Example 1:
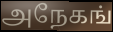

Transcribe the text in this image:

அநேகங்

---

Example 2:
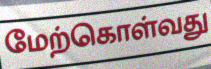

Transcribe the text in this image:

மேற்கொள்வது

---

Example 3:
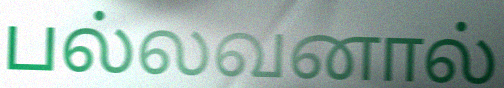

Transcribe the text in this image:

பல்லவனால்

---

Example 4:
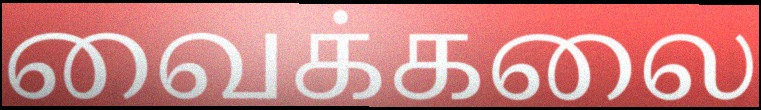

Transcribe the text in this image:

வைக்கலை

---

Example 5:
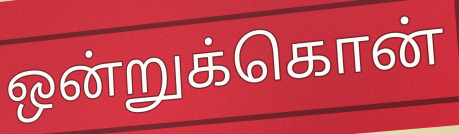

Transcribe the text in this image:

ஒன்றுக்கொன்